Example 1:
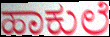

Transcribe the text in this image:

ಹಾಕುಲೆ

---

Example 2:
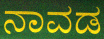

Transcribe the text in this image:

ನಾವಡ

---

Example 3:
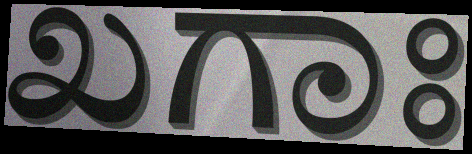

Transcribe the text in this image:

ಖಗಾಃ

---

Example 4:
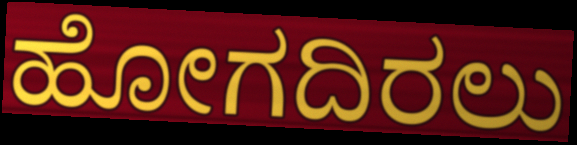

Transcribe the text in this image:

ಹೋಗದಿರಲು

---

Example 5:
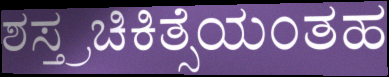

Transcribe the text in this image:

ಶಸ್ತ್ರಚಿಕಿತ್ಸೆಯಂತಹ